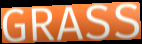
GRASS